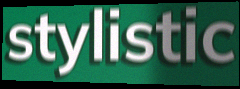
stylistic